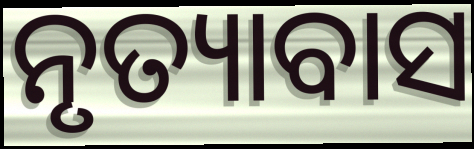
ନୃତ୍ୟାବାସ